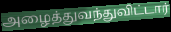
அழைத்துவந்துவிட்டார்